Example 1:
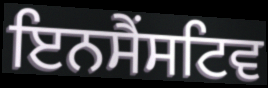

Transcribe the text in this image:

ਇਨਸੈਂਸਟਿਵ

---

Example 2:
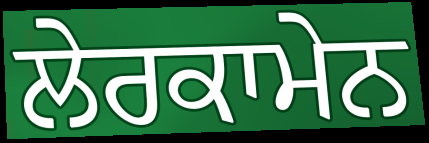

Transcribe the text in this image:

ਲੇਰਕਾਮੇਨ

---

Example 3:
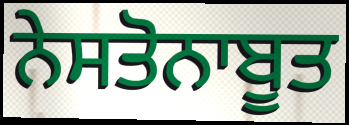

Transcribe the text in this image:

ਨੇਸਤੋਨਾਬੂਤ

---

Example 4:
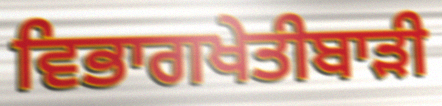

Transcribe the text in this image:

ਵਿਭਾਗਖੇਤੀਬਾੜੀ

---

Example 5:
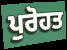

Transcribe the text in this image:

ਪੁਰੋਹਤ